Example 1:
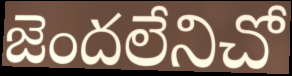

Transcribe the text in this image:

జెందలేనిచో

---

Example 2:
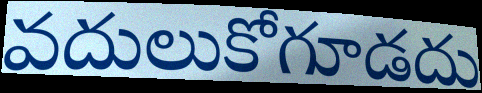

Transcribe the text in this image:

వదులుకోగూడదు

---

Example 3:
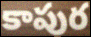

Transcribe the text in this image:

కాపుర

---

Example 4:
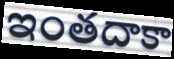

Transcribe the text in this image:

ఇంతదాకా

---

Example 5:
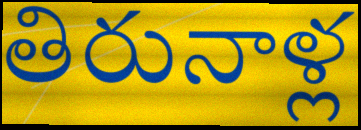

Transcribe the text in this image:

తిరునాళ్ల